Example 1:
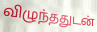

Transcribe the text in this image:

விழுந்ததுடன்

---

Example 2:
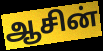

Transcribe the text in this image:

ஆசின்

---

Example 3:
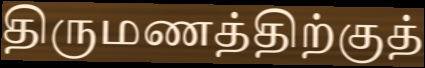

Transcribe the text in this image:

திருமணத்திற்குத்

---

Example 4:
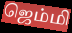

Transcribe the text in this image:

ஜெம்மி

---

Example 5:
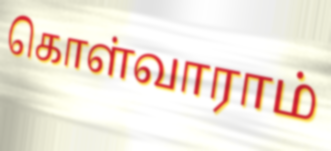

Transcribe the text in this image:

கொள்வாராம்